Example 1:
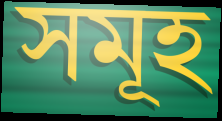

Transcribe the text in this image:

সমূহ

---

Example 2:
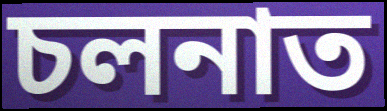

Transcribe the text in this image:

চলনাত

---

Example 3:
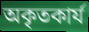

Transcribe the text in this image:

অকৃতকাৰ্য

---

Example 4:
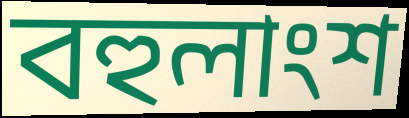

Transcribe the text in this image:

বহুলাংশ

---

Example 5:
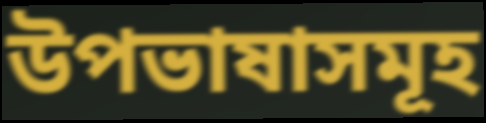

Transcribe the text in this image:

উপভাষাসমূহ